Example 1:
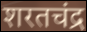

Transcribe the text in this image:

शरतचंद्र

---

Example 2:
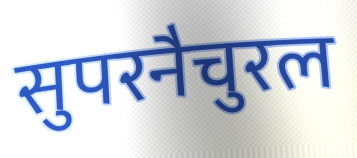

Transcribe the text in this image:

सुपरनैचुरल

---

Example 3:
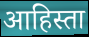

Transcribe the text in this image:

आहिस्ता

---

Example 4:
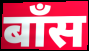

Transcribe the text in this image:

बॉंस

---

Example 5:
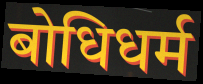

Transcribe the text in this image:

बोधिधर्म